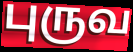
புருவ